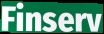
Finserv